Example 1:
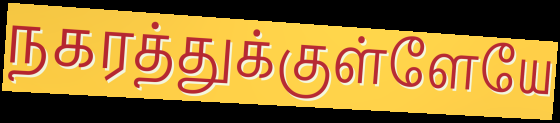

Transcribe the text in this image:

நகரத்துக்குள்ளேயே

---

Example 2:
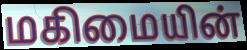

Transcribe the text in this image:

மகிமையின்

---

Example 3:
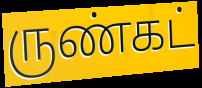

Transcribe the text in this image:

ருண்கட்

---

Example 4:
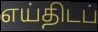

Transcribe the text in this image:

எய்திடப்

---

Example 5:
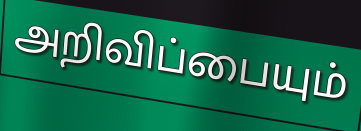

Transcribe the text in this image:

அறிவிப்பையும்